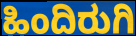
ಹಿಂದಿರುಗಿ